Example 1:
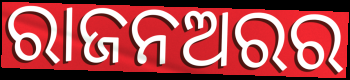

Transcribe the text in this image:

ରାଜନଅରର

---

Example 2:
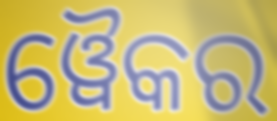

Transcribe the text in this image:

ୱୈକର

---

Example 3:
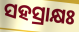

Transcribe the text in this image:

ସହସ୍ରାକ୍ଷଃ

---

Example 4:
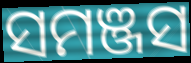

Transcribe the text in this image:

ସମଞ୍ଜସ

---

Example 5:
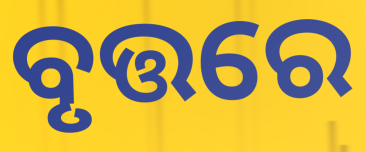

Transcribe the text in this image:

ବୃତ୍ତରେ